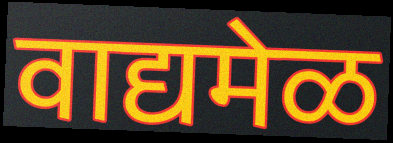
वाद्यमेळ